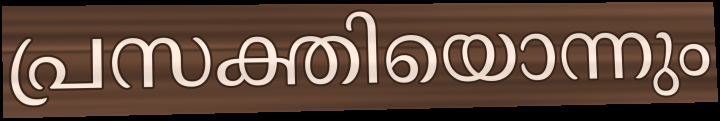
പ്രസക്തിയൊന്നും